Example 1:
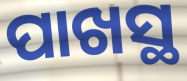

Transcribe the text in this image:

ପାଖସ୍ଥ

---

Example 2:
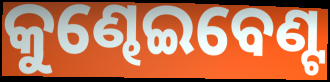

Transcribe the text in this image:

କୁଣ୍ଢେଇବେଣ୍ଟ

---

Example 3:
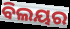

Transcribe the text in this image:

ବିଲୟର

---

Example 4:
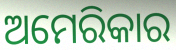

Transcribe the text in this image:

ଅମେରିକାର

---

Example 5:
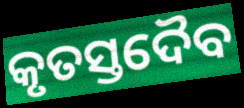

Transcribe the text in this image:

କୃତସ୍ତଦୈବ